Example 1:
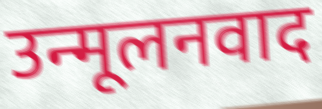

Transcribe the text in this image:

उन्मूलनवाद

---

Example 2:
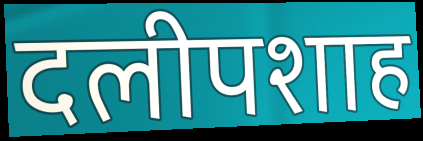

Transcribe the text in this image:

दलीपशाह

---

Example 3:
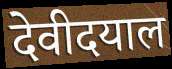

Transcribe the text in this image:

देवीदयाल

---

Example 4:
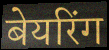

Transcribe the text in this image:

बेयरिंग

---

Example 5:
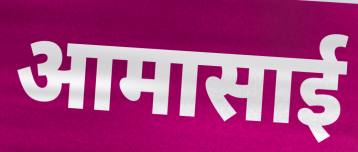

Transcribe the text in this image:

आमासाई